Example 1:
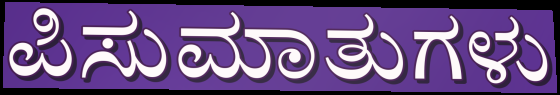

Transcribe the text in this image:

ಪಿಸುಮಾತುಗಳು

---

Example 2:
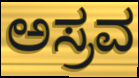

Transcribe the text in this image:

ಅಸ್ರವ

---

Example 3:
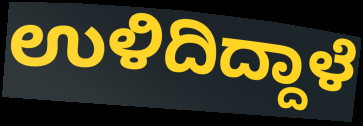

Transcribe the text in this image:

ಉಳಿದಿದ್ದಾಳೆ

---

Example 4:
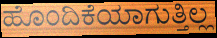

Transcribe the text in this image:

ಹೊಂದಿಕೆಯಾಗುತ್ತಿಲ್ಲ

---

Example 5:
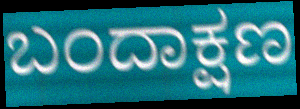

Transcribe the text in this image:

ಬಂದಾಕ್ಷಣ